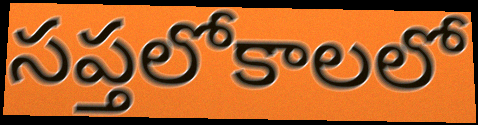
సప్తలోకాలలో